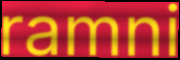
ramni